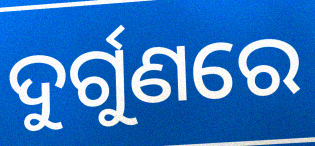
ଦୁର୍ଗୁଣରେ